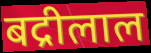
बद्रीलाल